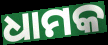
ଧାମକ